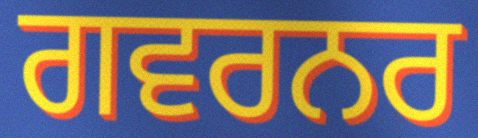
ਗਵਰਨਰ